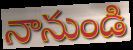
నానుండి